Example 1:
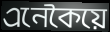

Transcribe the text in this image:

এনেকৈয়ে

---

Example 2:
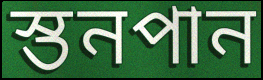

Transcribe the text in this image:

স্তনপান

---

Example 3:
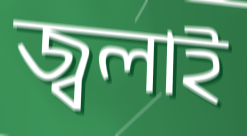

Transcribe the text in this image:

জ্বলাই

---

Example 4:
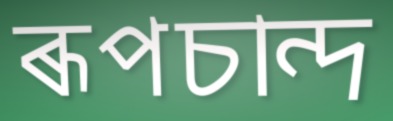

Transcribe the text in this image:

ৰূপচান্দ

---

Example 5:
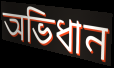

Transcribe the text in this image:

অভিধান